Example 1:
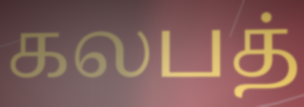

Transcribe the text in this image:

கலபத்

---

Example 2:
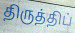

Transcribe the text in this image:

திருத்திப்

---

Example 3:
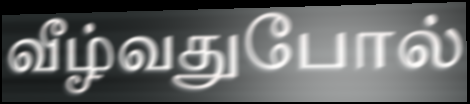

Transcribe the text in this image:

வீழ்வதுபோல்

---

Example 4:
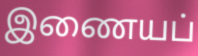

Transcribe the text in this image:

இணையப்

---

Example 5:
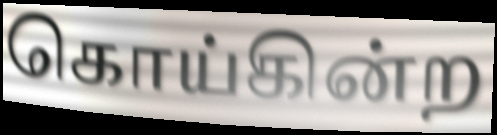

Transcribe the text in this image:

கொய்கின்ற